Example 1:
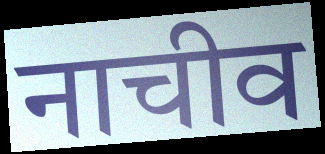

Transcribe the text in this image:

नाचीव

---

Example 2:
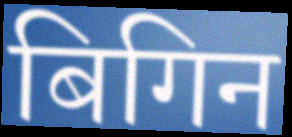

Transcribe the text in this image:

बिगिन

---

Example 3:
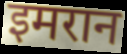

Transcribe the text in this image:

इमरान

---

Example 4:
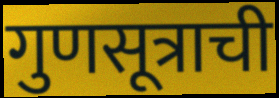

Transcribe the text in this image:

गुणसूत्राची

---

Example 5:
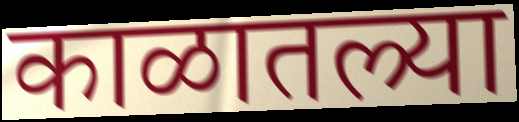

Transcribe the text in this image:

काळातल्या